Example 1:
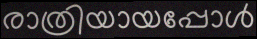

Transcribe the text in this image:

രാത്രിയായപ്പോൾ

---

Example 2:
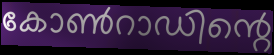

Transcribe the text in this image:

കോൺറാഡിന്റെ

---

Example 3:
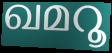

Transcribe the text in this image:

ഖമറൂ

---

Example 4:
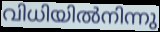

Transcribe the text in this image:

വിധിയിൽനിന്നു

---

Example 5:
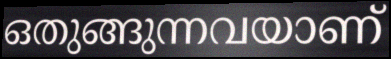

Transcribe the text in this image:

ഒതുങ്ങുന്നവയാണ്